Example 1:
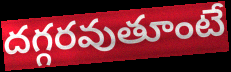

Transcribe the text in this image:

దగ్గరవుతూంటే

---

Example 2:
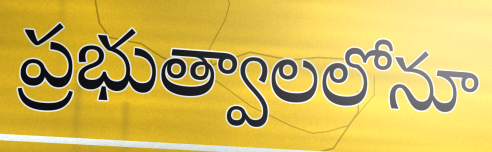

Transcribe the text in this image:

ప్రభుత్వాలలోనూ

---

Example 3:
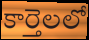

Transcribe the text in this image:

కార్తెలలో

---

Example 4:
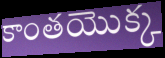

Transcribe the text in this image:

కాంతయొక్క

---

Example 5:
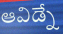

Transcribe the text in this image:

ఆవిడ్నే